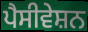
ਪੈਸੀਵੇਸ਼ਨ